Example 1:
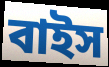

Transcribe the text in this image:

বাইস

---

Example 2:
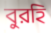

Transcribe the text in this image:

বুরহি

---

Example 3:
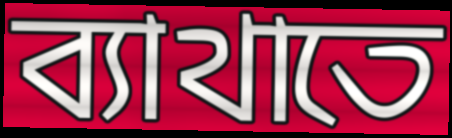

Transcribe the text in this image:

ব্যাথাতে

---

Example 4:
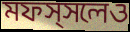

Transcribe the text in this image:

মফস্‌সলেও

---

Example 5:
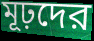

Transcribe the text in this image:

মূঢ়দের